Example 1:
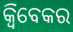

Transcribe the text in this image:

କ୍ୱିବେକର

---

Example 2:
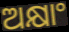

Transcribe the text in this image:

ଅକ୍ଷାଂ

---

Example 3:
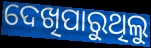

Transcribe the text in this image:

ଦେଖିପାରୁଥିଲୁ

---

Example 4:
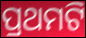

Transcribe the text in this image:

ପ୍ରଥମଟି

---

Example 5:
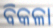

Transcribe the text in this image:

ବିକଳା